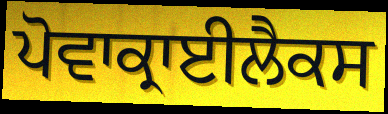
ਪੋਵਾਕ੍ਰਾਈਲੈਕਸ